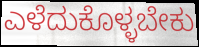
ಎಳೆದುಕೊಳ್ಳಬೇಕು